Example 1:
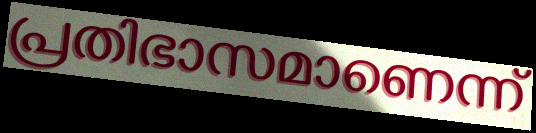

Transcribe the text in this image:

പ്രതിഭാസമാണെന്ന്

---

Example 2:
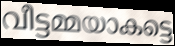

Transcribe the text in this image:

വീട്ടമ്മയാകട്ടെ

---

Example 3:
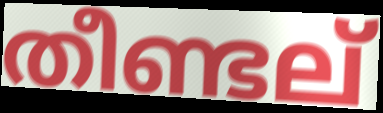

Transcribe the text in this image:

തീണ്ടല്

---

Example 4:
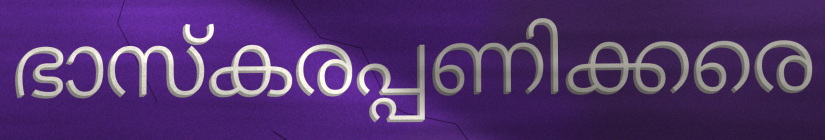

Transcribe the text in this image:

ഭാസ്കരപ്പണിക്കരെ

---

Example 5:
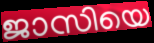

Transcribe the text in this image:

ജാസിയെ